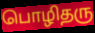
பொழிதரு